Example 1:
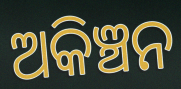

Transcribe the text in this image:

ଅକିଞ୍ଚନ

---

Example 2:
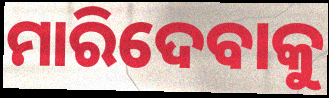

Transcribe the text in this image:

ମାରିଦେବାକୁ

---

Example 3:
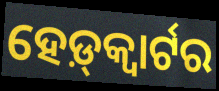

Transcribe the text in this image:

ହେଡ଼୍‌କ୍ୱାର୍ଟର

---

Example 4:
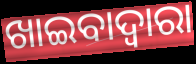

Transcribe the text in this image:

ଖାଇବାଦ୍ଵାରା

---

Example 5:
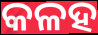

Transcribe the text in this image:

କଳହ